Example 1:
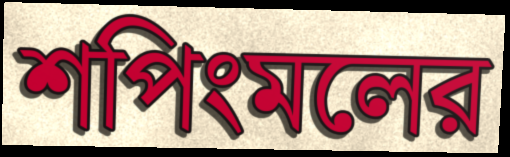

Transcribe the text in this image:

শপিংমলের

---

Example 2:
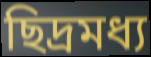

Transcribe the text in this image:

ছিদ্রমধ্য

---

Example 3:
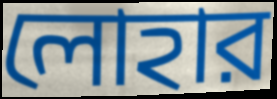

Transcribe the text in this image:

লোহার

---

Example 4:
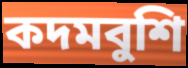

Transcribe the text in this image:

কদমবুশি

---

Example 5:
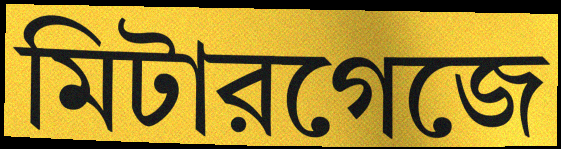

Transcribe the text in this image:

মিটারগেজে